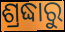
ଶ୍ରଦ୍ଧାରୁ